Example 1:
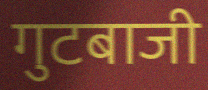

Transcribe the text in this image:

गुटबाजी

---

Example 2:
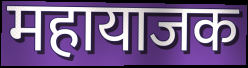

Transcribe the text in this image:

महायाजक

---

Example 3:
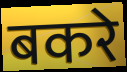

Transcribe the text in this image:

बकरे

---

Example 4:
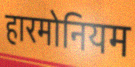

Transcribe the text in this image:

हारमोनियम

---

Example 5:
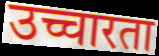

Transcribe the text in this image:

उच्चारता